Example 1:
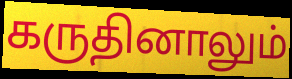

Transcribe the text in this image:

கருதினாலும்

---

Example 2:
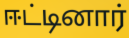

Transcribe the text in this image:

ஈட்டினார்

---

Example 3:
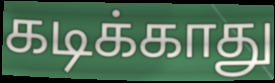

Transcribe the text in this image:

கடிக்காது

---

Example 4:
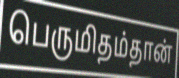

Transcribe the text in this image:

பெருமிதம்தான்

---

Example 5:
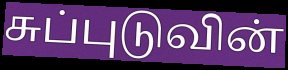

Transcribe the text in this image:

சுப்புடுவின்